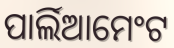
ପାର୍ଲିଆମେଂଟ